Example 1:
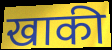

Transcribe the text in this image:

खाकी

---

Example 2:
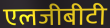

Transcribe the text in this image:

एलजीबीटी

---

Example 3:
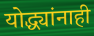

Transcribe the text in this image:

योद्ध्यांनाही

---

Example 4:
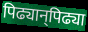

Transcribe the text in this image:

पिढ्यान्‌पिढ्या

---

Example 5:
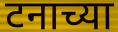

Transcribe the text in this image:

टनाच्या